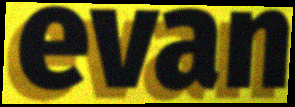
evan